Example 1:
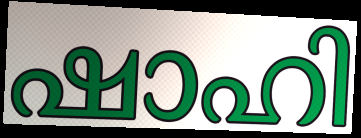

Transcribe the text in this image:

ഷാഹി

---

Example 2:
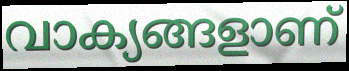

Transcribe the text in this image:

വാക്യങ്ങളാണ്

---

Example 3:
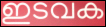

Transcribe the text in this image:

ഇടവക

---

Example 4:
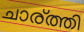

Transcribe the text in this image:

ചാര്ത്തി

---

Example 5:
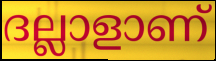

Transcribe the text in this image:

ദല്ലാളാണ്